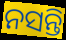
ନସନ୍ତି